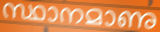
സ്ഥാനമാണു